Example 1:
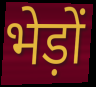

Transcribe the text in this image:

भेड़ों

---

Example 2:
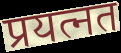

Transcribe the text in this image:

प्रयत्नत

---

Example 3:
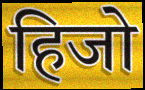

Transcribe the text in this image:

हिजो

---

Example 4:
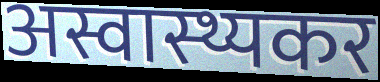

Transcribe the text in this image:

अस्वास्थ्यकर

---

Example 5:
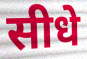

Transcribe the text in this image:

सीधे